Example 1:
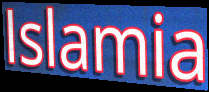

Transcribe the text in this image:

Islamia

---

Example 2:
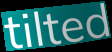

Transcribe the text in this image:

tilted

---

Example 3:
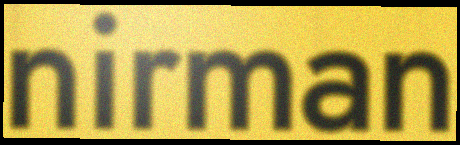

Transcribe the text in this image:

nirman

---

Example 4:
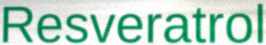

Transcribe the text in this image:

Resveratrol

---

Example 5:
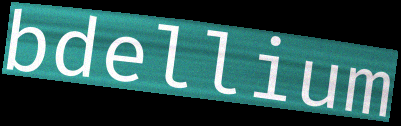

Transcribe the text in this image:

bdellium